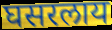
घसरलाय